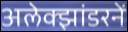
अलेक्झांडरनें